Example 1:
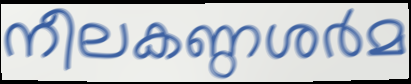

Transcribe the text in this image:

നീലകണ്ഠശർമ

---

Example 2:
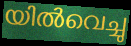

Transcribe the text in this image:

യിൽവെച്ചു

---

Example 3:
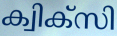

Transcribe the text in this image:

ക്വിക്സി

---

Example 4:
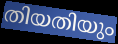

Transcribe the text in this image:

തിയതിയും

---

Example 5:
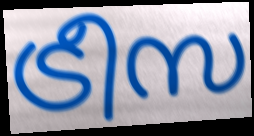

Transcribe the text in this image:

ട്രീസ